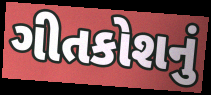
ગીતકોશનું